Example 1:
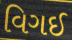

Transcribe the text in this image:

વિગઈ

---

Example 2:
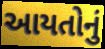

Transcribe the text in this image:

આયતોનું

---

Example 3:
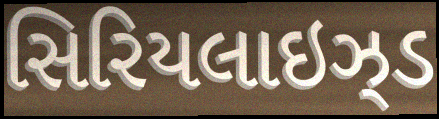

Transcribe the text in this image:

સિરિયલાઇઝ્ડ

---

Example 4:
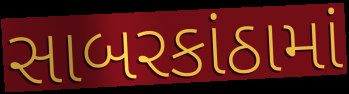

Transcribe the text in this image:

સાબરકાંઠામાં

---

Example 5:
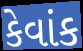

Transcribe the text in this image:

કેવાંક